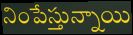
నింపేస్తున్నాయి